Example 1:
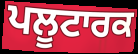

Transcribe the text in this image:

ਪਲੂਟਾਰਕ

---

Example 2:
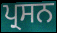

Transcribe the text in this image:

ਪ੍ਰਸਨ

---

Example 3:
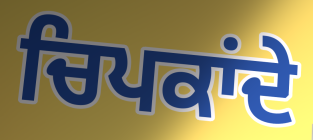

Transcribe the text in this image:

ਚਿਪਕਾਂਦੇ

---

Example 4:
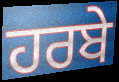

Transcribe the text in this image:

ਹਰਬੇ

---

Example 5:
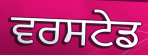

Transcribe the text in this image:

ਵਰਸਟੇਡ